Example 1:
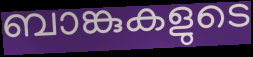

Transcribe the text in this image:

ബാങ്കുകളുടെ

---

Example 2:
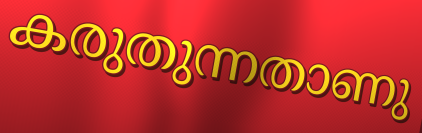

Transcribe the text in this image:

കരുതുന്നതാണു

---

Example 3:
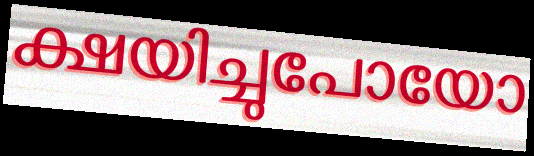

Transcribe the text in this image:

ക്ഷയിച്ചുപോയോ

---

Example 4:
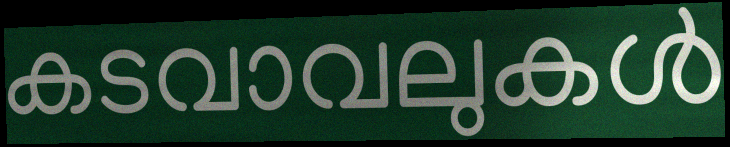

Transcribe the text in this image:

കടവാവലുകൾ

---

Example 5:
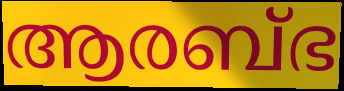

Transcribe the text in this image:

ആരബ്ഭ